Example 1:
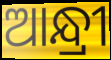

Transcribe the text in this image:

ଆନ୍ଧ୍ରୀ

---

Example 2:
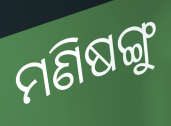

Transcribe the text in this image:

ମଣିଷଙ୍ଗୁ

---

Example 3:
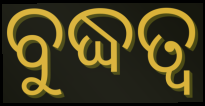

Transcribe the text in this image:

ବୁଦ୍ଧତ୍ଵ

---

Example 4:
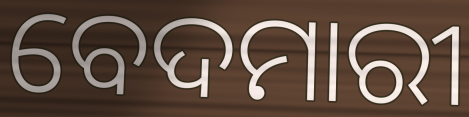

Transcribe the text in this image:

ବେଦମାରୀ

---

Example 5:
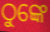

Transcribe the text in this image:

ଠୁଙ୍କେ